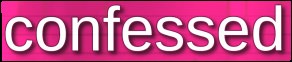
confessed